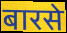
बारसे